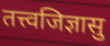
तत्त्वजिज्ञासु